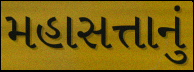
મહાસત્તાનું